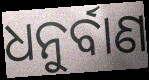
ଧନୁର୍ବାଣ